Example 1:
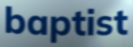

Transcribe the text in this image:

baptist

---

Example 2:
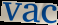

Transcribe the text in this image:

vac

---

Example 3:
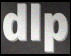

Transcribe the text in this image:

dlp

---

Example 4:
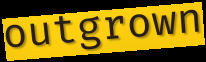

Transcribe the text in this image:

outgrown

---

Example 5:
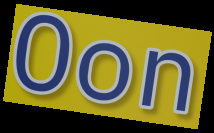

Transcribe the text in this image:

Oon